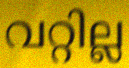
വറ്റില്ല